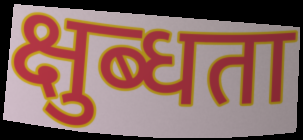
क्षुब्धता